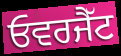
ਓਵਰਜੈੱਟ